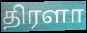
திரளா